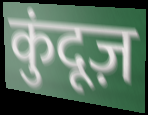
कुंदूज़